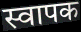
स्‍वापक